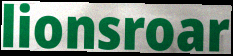
lionsroar